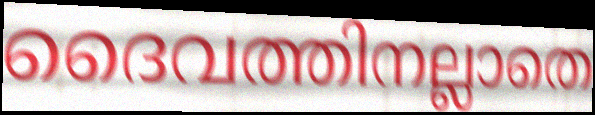
ദൈവത്തിനല്ലാതെ